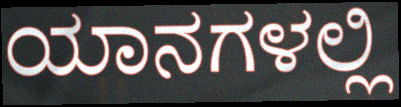
ಯಾನಗಳಲ್ಲಿ